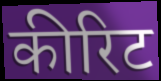
कीरिट